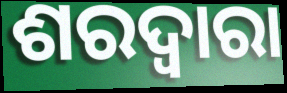
ଶରଦ୍ୱାରା